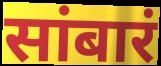
सांबारं